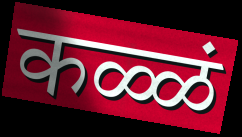
कळ्ळं